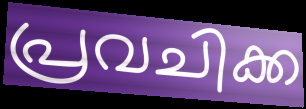
പ്രവചിക്ക